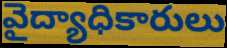
వైద్యాధికారులు